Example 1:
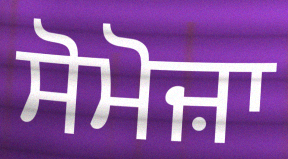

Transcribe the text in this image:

ਸੋਮੋਜ਼ਾ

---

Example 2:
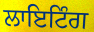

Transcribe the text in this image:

ਲਾਇਟਿੰਗ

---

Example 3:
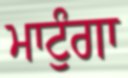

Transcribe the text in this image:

ਮਾਟੁੰਗਾ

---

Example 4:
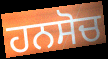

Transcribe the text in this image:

ਹਨਸੋਚ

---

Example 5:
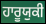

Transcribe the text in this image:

ਹਾਰੂਯੁਕੀ